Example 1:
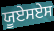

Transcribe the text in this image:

ਯੂਏਸਏਸ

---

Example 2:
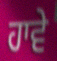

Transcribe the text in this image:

ਹਾਵੇ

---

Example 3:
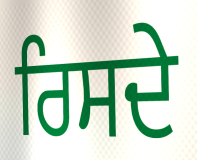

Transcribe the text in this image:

ਰਿਸਦੇ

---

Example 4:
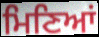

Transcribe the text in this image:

ਮਿਣਿਆਂ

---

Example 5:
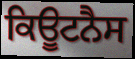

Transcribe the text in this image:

ਕਿਊਟਨੈਸ